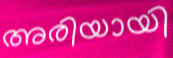
അരിയായി